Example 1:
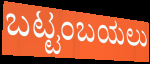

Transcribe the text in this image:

ಬಟ್ಟಂಬಯಲು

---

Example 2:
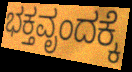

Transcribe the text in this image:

ಭಕ್ತವೃಂದಕ್ಕೆ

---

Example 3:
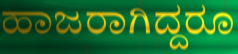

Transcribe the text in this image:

ಹಾಜರಾಗಿದ್ದರೂ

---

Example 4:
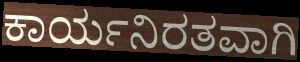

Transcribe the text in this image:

ಕಾರ್ಯನಿರತವಾಗಿ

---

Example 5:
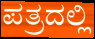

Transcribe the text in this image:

ಪತ್ರದಲ್ಲಿ